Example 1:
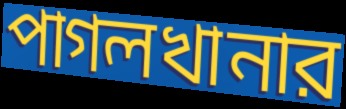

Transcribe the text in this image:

পাগলখানার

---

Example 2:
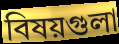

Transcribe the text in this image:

বিষয়গুলা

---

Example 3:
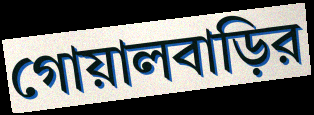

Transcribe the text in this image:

গোয়ালবাড়ির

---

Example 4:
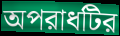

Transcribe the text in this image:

অপরাধটির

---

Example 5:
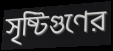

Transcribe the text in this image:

সৃষ্টিগুণের